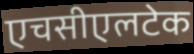
एचसीएलटेक